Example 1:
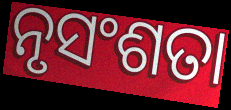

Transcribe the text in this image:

ନୃସଂଶତା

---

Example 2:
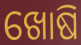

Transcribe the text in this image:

ଖୋଷି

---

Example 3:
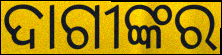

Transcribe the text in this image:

ଦାଗୀଙ୍କର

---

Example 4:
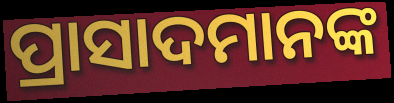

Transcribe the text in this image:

ପ୍ରାସାଦମାନଙ୍କ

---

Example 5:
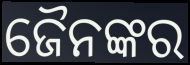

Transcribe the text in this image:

ଜୈନଙ୍କର